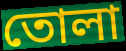
তোলা